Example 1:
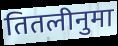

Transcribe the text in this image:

तितलीनुमा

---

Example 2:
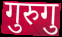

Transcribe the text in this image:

गुरुगु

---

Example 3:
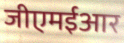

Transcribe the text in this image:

जीएमईआर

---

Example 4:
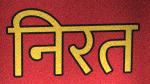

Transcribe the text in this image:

निरत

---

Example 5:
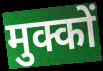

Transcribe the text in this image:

मुक्कों